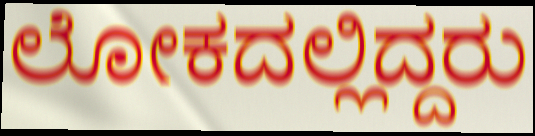
ಲೋಕದಲ್ಲಿದ್ದರು